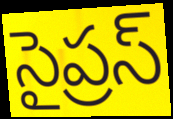
సైప్రస్